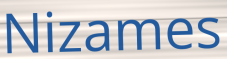
Nizames